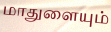
மாதுளையும்